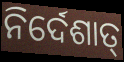
ନିର୍ଦେଶାତ୍